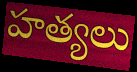
హత్యలు